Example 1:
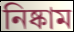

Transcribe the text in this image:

নিষ্কাম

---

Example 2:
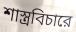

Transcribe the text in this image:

শাস্ত্রবিচারে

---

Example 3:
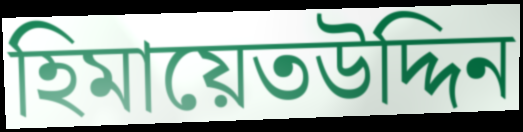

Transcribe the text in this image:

হিমায়েতউদ্দিন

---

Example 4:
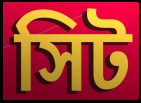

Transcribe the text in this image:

সিট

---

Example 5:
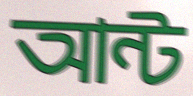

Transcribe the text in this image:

আন্ট